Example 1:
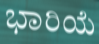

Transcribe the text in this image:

ಭಾರಿಯೆ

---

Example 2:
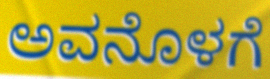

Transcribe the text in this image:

ಅವನೊಳಗೆ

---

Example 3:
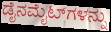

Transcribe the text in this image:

ಡೈನಮೈಟ್‌ಗಳನ್ನು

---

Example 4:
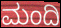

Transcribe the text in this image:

ಮಂದಿ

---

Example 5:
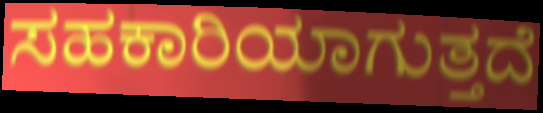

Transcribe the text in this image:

ಸಹಕಾರಿಯಾಗುತ್ತದೆ